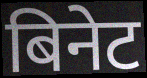
बिनेट